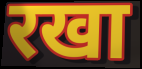
रखा